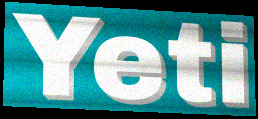
Yeti